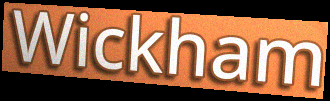
Wickham